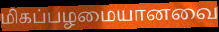
மிகப்பழமையானவை